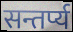
सन्तर्प्य